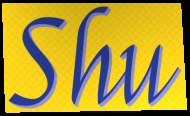
Shu